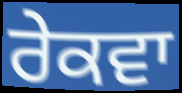
ਰੇਕਵਾ